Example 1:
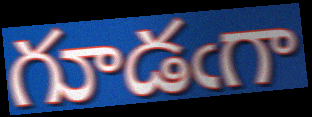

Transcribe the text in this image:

గూడఁగా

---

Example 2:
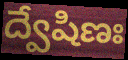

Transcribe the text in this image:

ద్వేషిణః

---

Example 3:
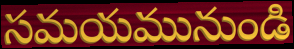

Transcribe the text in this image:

సమయమునుండి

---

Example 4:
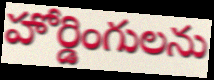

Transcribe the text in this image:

హోర్డింగులను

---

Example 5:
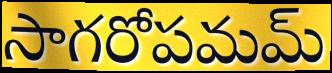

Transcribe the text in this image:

సాగరోపమమ్